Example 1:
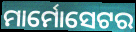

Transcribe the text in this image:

ମାର୍ମୋସେଟର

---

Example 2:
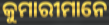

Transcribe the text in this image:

କୁମାରୀମାନେ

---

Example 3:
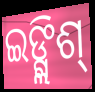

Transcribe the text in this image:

ଇଙ୍ଗ୍ଲିଶ୍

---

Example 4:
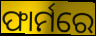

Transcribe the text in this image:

ଫାର୍ମରେ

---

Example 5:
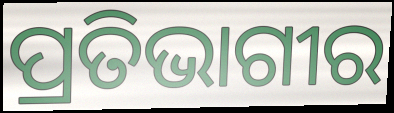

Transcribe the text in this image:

ପ୍ରତିଭାଗୀର